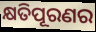
କ୍ଷତିପୂରଣର